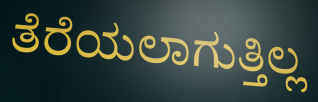
ತೆರೆಯಲಾಗುತ್ತಿಲ್ಲ